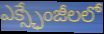
ఎక్స్ఛేంజీలలో